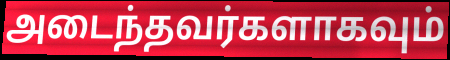
அடைந்தவர்களாகவும்